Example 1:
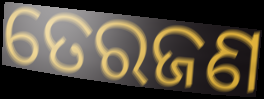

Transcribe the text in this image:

ତେରଜଣ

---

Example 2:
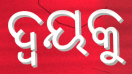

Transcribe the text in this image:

ଦ୍ଵୟକୁ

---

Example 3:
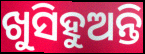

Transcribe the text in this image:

ଖୁସିହୁଅନ୍ତି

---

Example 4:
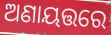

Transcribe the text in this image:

ଅଣାୟତ୍ତରେ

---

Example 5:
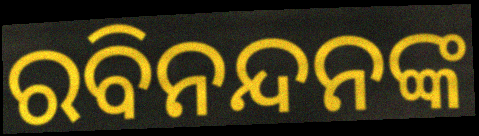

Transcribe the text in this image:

ରବିନନ୍ଦନଙ୍କ